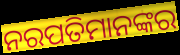
ନରପତିମାନଙ୍କର